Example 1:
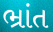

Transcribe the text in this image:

ભ્રાંત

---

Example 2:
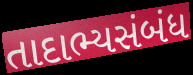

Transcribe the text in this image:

તાદાભ્યસંબંધ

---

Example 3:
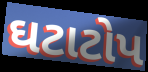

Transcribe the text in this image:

ઘટાટોપ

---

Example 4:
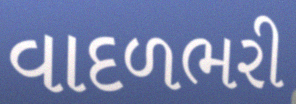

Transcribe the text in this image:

વાદળભરી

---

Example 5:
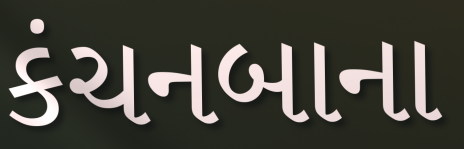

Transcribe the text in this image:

કંચનબાના